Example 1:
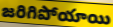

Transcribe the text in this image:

జరిగిపోయాయి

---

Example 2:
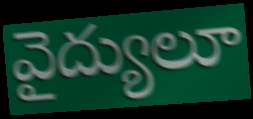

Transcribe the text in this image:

వైద్యులూ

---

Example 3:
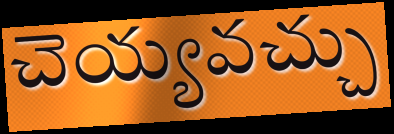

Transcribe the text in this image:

చెయ్యవచ్చు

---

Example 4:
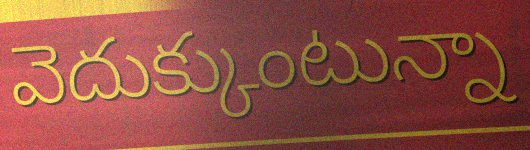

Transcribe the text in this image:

వెదుక్కుంటున్నా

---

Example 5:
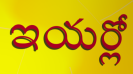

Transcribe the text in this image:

ఇయర్లో